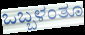
ಒಬ್ಬಳಂತೂ